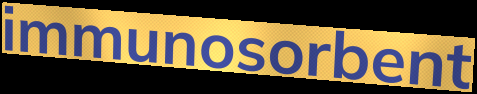
immunosorbent